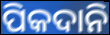
ପିକଦାନି